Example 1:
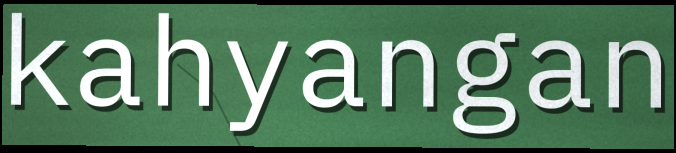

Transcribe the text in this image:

kahyangan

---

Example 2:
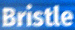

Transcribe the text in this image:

Bristle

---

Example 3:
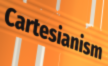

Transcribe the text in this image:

Cartesianism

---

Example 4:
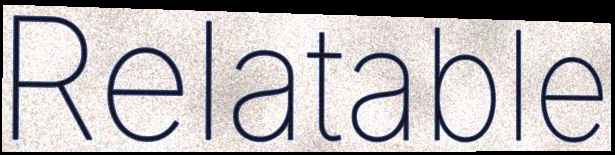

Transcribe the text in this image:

Relatable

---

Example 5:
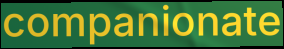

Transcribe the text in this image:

companionate